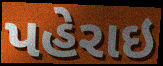
પહેરાઇ